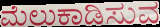
ಮೆಲುಕಾಡಿಸುವ